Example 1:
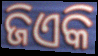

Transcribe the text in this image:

ଜିଏକି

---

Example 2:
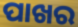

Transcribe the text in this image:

ପାଖର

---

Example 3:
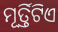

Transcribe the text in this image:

ମୂର୍ତ୍ତିଟିଏ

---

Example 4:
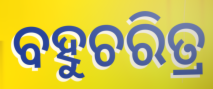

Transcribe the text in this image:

ବହୁଚରିତ୍ର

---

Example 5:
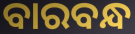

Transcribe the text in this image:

ବାରବନ୍ଧ